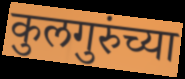
कुलगुरुंच्या